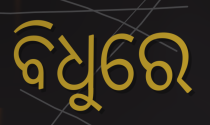
ବିଧୁରେ